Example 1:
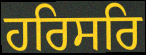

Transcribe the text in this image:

ਹਰਿਸਰਿ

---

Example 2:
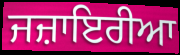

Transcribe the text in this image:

ਜਜ਼ਾਇਰੀਆ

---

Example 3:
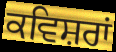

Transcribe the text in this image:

ਕਵਿਸ਼ਰਾਂ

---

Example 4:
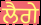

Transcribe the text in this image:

ਲੈਗੇ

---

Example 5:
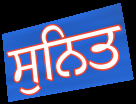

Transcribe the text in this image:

ਸੁਨਿਤ